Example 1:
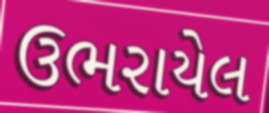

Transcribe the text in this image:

ઉભરાયેલ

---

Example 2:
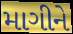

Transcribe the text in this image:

માગીને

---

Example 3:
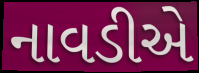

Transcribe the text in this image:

નાવડીએ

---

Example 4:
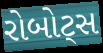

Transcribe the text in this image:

રોબોટ્સ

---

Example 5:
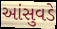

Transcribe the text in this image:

આંસુવડે